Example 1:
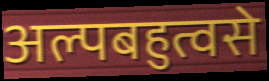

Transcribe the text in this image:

अल्पबहुत्वसे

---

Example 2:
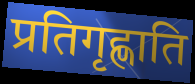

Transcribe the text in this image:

प्रतिगृह्णाति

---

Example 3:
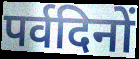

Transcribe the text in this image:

पर्वदिनों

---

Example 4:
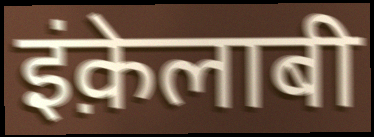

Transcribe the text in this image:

इंक़ेलाबी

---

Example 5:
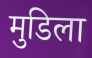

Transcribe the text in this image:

मुडिला